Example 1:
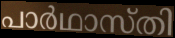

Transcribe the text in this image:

പാർഥാസ്തി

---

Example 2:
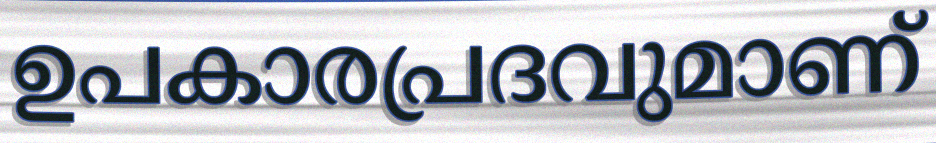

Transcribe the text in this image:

ഉപകാരപ്രദവുമാണ്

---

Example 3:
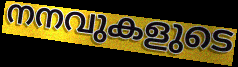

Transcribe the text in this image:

നനവുകളുടെ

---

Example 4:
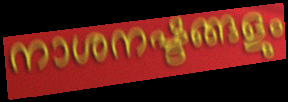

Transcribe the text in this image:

നാശനഷ്ടങ്ങളും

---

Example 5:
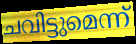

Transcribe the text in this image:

ചവിട്ടുമെന്ന്